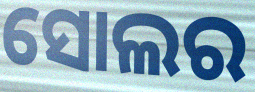
ସୋଲର